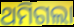
ଥମିଗଲା